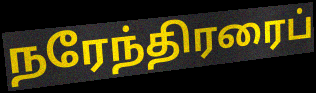
நரேந்திரரைப்